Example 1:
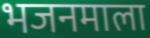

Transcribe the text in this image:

भजनमाला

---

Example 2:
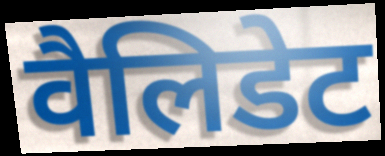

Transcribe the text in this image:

वैलिडेट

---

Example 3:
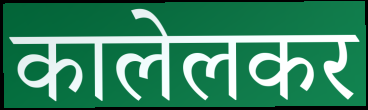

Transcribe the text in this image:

कालेलकर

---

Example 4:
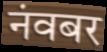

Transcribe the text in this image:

नंवबर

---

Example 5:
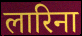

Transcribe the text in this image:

लारिना